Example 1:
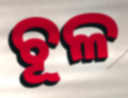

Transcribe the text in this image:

ଚୂଳ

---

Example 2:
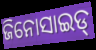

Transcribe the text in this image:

ଜିନୋସାଇଡ୍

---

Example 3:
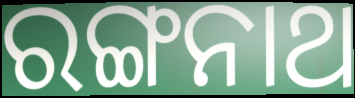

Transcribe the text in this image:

ରଙ୍ଗନାଥ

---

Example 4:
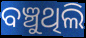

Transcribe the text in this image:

ବଞ୍ଚୁଥିଲି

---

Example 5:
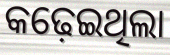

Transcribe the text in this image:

କଢ଼େଇଥିଲା